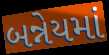
બન્નેયમાં